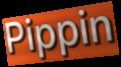
Pippin